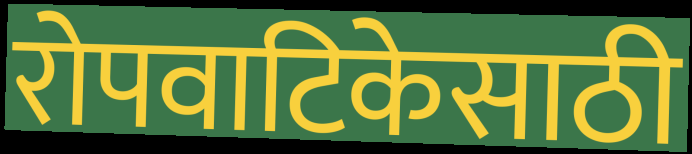
रोपवाटिकेसाठी